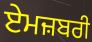
ਏਮਜ਼ਬਰੀ